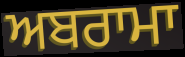
ਅਬਰਾਮਾ